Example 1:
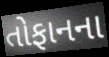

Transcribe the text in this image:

તોફાનના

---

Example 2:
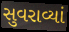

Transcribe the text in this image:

સુવરાવ્યાં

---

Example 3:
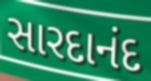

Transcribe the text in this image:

સારદાનંદ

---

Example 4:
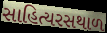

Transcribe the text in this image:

સાહિત્યરસથાળ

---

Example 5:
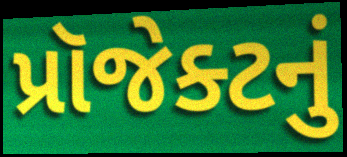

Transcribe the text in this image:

પ્રૉજેક્ટનું